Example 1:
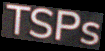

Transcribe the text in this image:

TSPs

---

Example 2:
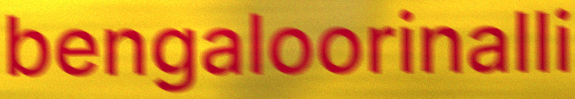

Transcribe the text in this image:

bengaloorinalli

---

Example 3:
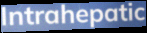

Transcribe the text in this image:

Intrahepatic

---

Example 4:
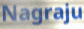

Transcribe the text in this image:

Nagraju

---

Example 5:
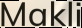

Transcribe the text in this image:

Makli